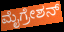
ಮೈಗ್ರೇಶನ್